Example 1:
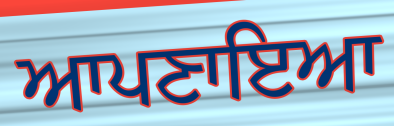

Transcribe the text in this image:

ਆਪਣਾਇਆ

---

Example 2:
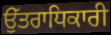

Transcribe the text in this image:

ਉੱਤਰਾਧਿਕਾਰੀ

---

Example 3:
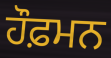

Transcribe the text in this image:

ਹੌਫ਼ਮਨ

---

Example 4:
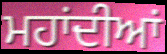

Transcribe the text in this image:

ਮਹਾਂਦੀਆਂ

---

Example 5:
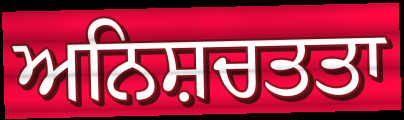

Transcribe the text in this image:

ਅਨਿਸ਼ਚਤਤਾ